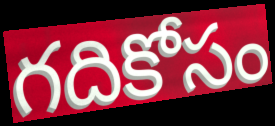
గదికోసం